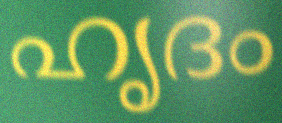
ഹൃദം